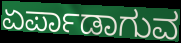
ಏರ್ಪಾಡಾಗುವ